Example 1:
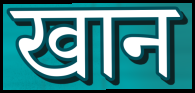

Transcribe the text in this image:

खान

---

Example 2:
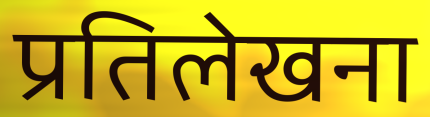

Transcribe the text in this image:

प्रतिलेखना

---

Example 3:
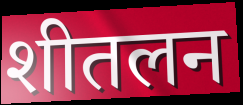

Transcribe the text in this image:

शीतलन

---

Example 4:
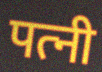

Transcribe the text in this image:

पत्‍नी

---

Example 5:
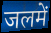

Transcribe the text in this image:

जलमें